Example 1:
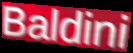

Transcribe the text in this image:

Baldini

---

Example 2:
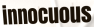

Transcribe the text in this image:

innocuous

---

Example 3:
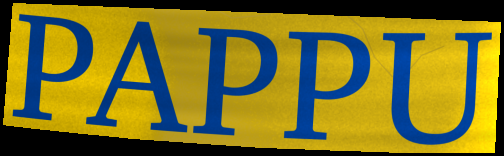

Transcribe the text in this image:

PAPPU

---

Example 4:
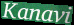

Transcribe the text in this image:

Kanavi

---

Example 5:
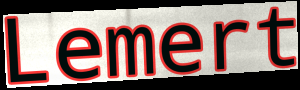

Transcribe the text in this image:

Lemert